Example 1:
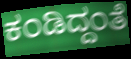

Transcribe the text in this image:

ಕಂಡಿದ್ದಂತೆ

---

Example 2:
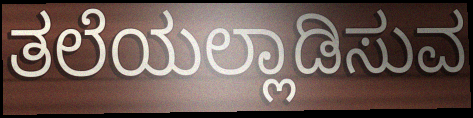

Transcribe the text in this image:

ತಲೆಯಲ್ಲಾಡಿಸುವ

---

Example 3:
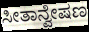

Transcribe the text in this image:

ಸೀತಾನ್ವೇಷಣ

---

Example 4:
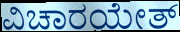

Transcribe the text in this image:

ವಿಚಾರಯೇತ್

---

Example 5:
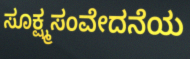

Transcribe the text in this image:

ಸೂಕ್ಷ್ಮಸಂವೇದನೆಯ